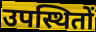
उपस्थितों